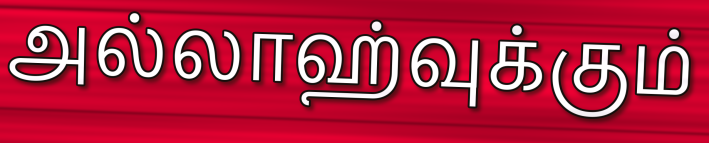
அல்லாஹ்வுக்கும்